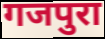
गजपुरा